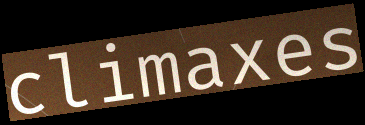
climaxes